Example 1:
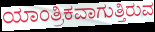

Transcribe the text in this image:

ಯಾಂತ್ರಿಕವಾಗುತ್ತಿರುವ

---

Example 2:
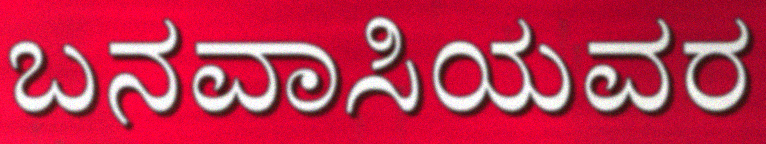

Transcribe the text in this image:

ಬನವಾಸಿಯವರ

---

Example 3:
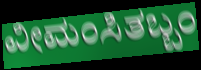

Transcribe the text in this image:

ವೀಮಂಸಿತಬ್ಬಂ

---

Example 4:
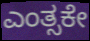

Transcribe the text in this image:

ಎಂತ್ಸಕೇ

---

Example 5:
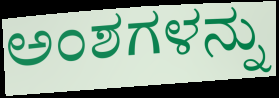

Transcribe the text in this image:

ಅಂಶಗಳನ್ನು